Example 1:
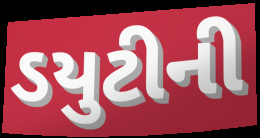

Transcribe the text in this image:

ડયુટીની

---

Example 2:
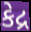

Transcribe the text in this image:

કેદ્ર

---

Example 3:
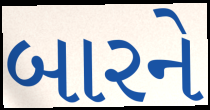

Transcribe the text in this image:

બારને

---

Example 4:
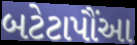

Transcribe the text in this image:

બટેટાપૌંઆ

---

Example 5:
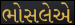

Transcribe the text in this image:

ભોસલેએ